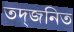
তদ্জনিত